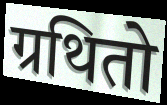
ग्रथितो